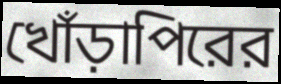
খোঁড়াপিরের